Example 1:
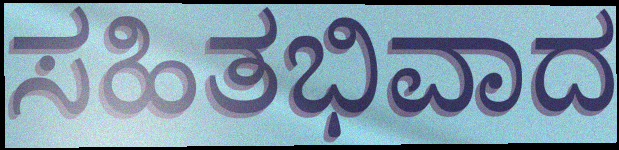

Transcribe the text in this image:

ಸಹಿತಭಿವಾದ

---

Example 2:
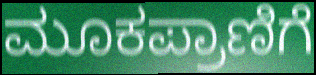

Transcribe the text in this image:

ಮೂಕಪ್ರಾಣಿಗೆ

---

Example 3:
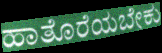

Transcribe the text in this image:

ಹಾತೊರೆಯಬೇಕು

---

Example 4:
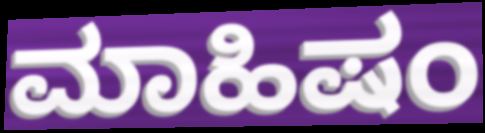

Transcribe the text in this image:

ಮಾಹಿಷಂ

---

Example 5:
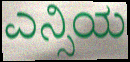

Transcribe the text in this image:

ಎನ್ಸಿಯ